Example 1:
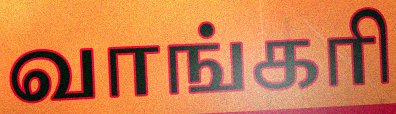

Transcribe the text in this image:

வாங்கரி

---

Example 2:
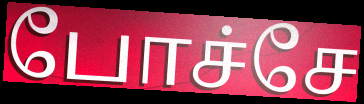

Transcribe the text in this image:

போச்சே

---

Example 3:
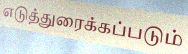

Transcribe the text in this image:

எடுத்துரைக்கப்படும்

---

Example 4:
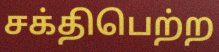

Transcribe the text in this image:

சக்திபெற்ற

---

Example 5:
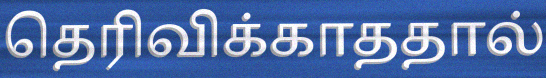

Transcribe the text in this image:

தெரிவிக்காததால்